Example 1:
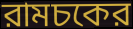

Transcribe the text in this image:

রামচকের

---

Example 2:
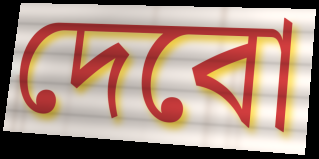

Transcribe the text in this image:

দেবো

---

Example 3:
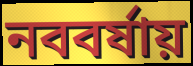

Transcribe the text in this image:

নববর্ষায়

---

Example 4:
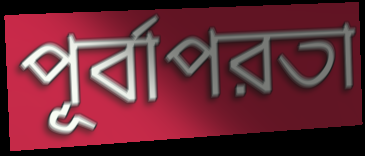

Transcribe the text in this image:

পূর্বাপরতা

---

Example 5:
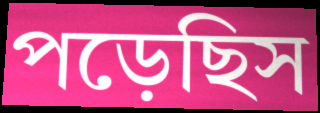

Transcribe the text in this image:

পড়েছিস